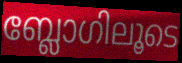
ബ്ലോഗിലൂടെ